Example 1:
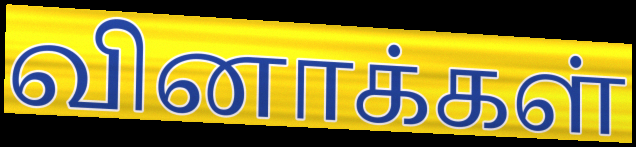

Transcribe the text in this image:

வினாக்கள்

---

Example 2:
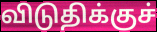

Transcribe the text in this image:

விடுதிக்குச்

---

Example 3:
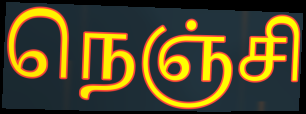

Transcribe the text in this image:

நெஞ்சி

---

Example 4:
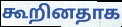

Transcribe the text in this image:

கூறினதாக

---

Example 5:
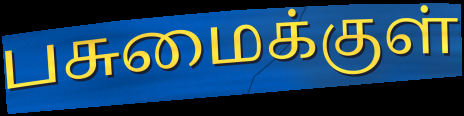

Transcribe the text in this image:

பசுமைக்குள்